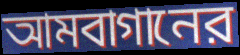
আমবাগানের